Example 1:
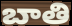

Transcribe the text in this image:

బాతి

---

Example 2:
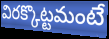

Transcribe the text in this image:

విరక్కొట్టమంటే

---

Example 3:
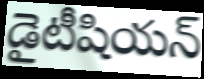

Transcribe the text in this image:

డైటీషియన్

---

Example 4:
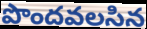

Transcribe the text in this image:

పొందవలసిన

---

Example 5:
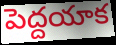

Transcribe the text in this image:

పెద్దయాక